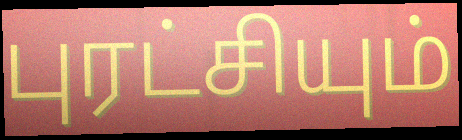
புரட்சியும்